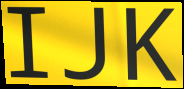
IJK